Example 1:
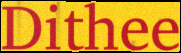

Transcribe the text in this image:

Dithee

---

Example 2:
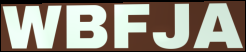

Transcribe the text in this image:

WBFJA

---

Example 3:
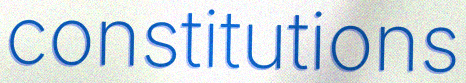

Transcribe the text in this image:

constitutions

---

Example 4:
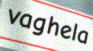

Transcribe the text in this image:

vaghela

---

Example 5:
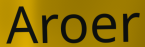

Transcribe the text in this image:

Aroer